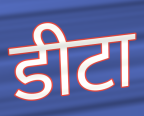
डीटा